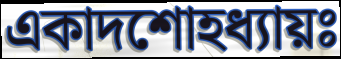
একাদশোহধ্যায়ঃ